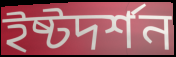
ইষ্টদর্শন